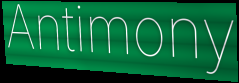
Antimony